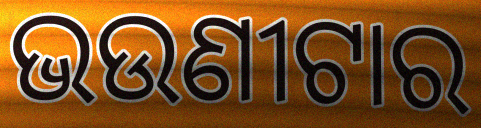
ଭଉଣୀଟାର